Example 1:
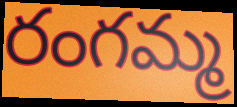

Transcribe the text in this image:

రంగమ్మ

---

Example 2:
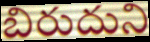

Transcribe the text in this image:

బిరుదుని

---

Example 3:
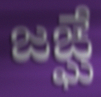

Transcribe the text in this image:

జఙ్ఘే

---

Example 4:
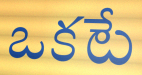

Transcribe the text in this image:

ఒకటే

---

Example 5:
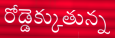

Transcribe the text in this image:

రోడ్డెక్కుతున్న